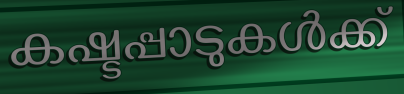
കഷ്ടപ്പാടുകൾക്ക്